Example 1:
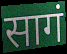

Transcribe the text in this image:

सागं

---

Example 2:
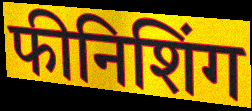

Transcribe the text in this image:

फीनिशिंग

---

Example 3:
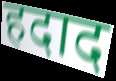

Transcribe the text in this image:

हदाद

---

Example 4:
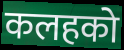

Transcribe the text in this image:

कलहको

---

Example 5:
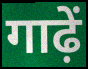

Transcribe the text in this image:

गाढ़ें